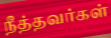
நீத்தவர்கள்